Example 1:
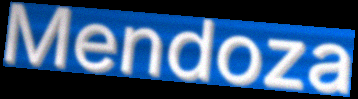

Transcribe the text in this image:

Mendoza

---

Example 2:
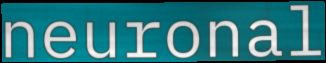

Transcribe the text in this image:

neuronal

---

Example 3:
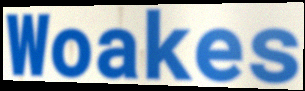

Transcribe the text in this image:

Woakes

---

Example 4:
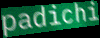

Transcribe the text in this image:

padichi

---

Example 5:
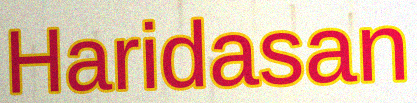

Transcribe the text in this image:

Haridasan